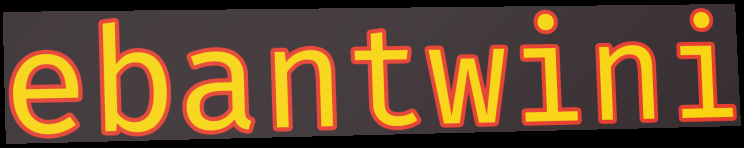
ebantwini